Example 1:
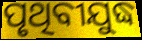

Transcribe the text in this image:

ପୃଥିବୀଯୁଦ୍ଧ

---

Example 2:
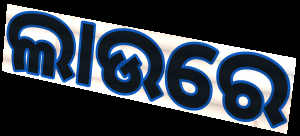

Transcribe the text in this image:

ଲାଉରେ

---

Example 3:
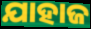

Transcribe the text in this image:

ଯାହାଜ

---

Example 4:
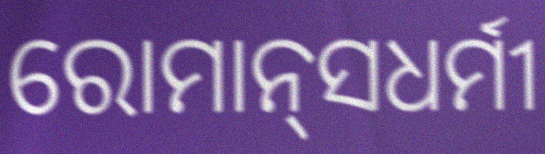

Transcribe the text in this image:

ରୋମାନ୍‍ସଧର୍ମୀ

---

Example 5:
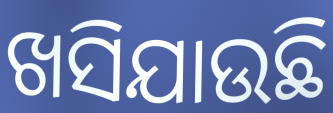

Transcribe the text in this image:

ଖସିଯାଉଛି